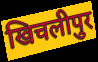
खिचलीपुर